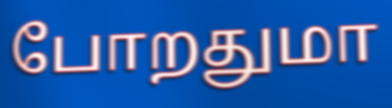
போறதுமா